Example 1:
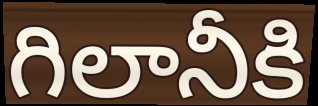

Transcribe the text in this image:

గిలానీకి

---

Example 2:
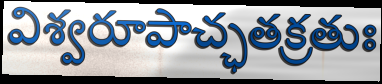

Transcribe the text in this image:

విశ్వరూపాచ్ఛతక్రతుః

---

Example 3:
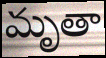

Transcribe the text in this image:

మృతా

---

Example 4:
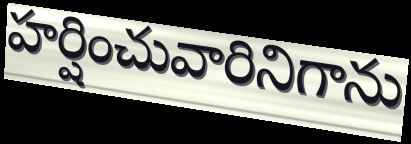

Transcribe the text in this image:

హర్షించువారినిగాను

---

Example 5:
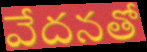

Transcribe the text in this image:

వేదనతో